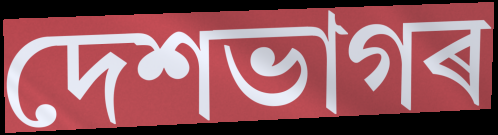
দেশভাগৰ